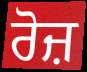
ਰੋਜ਼